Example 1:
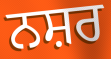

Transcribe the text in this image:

ਨਸ਼ਰ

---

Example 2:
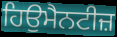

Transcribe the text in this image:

ਹਿਉਮੈਨਟੀਜ਼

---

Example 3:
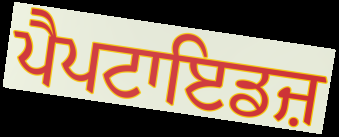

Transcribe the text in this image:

ਪੈਪਟਾਇਡਜ਼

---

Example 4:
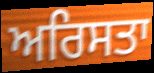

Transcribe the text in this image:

ਅਰਿਸਤਾ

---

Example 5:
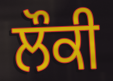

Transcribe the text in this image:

ਲੌਕੀ